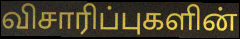
விசாரிப்புகளின்